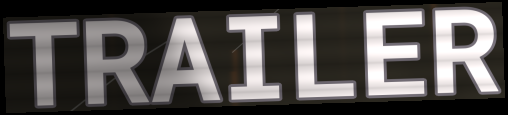
TRAILER